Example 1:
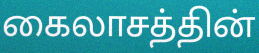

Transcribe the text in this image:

கைலாசத்தின்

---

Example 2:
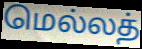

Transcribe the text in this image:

மெல்லத்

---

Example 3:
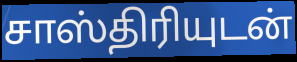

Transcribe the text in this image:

சாஸ்திரியுடன்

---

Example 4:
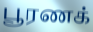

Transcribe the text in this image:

பூரணக்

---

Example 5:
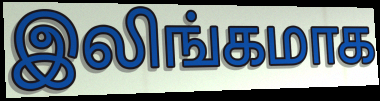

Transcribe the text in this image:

இலிங்கமாக